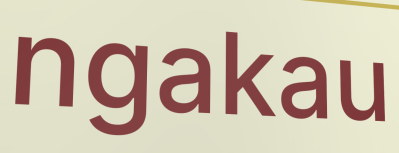
ngakau